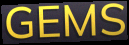
GEMS